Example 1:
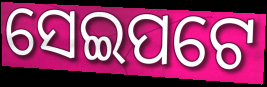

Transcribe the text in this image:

ସେଇପଟେ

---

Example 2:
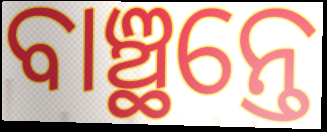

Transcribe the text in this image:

ବାଞ୍ଛନ୍ତେ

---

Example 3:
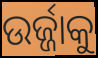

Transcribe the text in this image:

ଉର୍ଜ୍ଜାକୁ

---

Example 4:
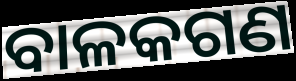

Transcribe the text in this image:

ବାଳକଗଣ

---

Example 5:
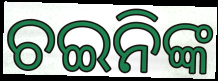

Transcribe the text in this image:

ଚଇନିଙ୍କ